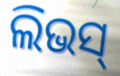
ଲିଭସ୍